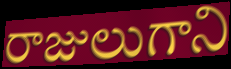
రాజులుగాని